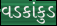
વડકાંકુડ